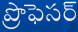
ప్రొఫెసర్